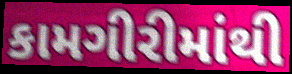
કામગીરીમાંથી